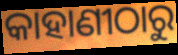
କାହାଣୀଠାରୁ